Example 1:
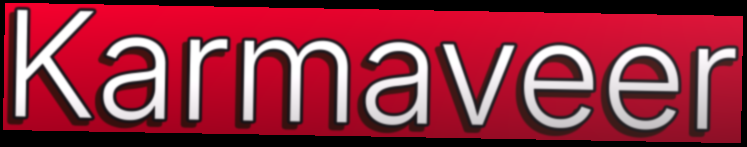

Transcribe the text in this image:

Karmaveer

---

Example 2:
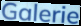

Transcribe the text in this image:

Galerie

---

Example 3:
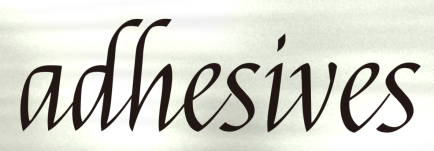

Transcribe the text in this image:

adhesives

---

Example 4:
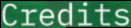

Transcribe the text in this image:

Credits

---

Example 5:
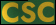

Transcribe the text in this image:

CSC